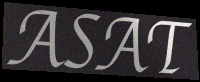
ASAT